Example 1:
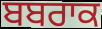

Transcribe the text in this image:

ਬਬਰਾਕ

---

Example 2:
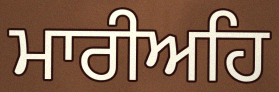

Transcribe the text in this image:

ਮਾਰੀਅਹਿ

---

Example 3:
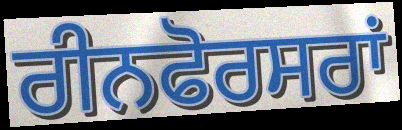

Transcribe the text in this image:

ਰੀਨਫੋਰਸਰਾਂ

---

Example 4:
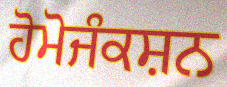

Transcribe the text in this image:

ਹੋਮੋਜੰਕਸ਼ਨ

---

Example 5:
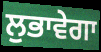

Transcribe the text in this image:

ਲੁਭਾਵੇਗਾ